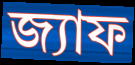
জ্যাফ